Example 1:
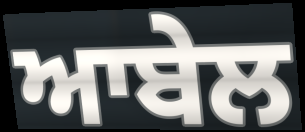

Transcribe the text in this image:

ਆਬੇਲ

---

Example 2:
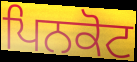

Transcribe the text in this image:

ਪਿਨਕੋਟ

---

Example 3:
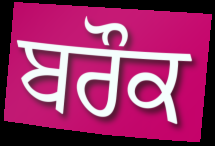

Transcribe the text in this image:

ਬਰੌਕ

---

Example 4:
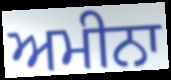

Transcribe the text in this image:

ਅਮੀਨਾ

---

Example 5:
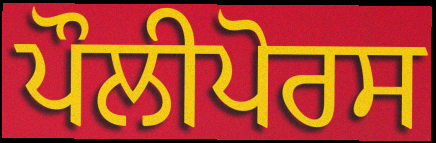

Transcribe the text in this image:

ਪੌਲੀਪੋਰਸ